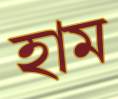
হাম